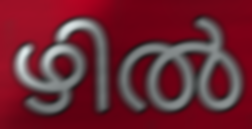
ഴിൽ